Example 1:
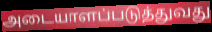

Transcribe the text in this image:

அடையாளப்படுத்துவது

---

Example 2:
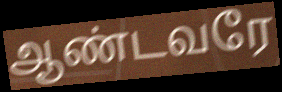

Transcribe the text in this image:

ஆண்டவரே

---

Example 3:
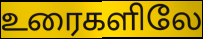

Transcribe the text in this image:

உரைகளிலே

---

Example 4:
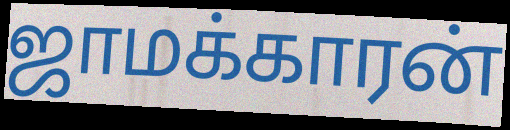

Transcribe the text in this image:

ஜாமக்காரன்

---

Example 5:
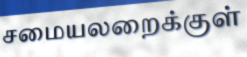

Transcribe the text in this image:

சமையலறைக்குள்